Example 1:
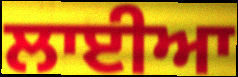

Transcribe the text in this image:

ਲਾਈਆ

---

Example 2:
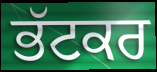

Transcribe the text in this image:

ਭੱਟਕਰ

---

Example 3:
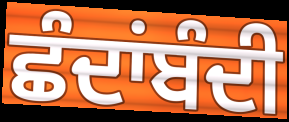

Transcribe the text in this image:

ਛੰਦਾਂਬੰਦੀ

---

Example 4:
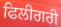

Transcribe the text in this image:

ਫਿਲੀਗਰੀ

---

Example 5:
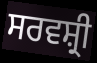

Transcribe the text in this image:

ਸਰਵਸ਼੍ਰੀ